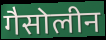
गैसोलीन